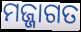
ମଜ୍ଜାଗତ